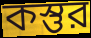
কস্তুর